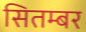
सितम्‍बर